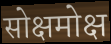
सोक्षमोक्ष